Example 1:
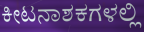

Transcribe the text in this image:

ಕೀಟನಾಶಕಗಳಲ್ಲಿ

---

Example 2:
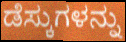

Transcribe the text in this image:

ಡೆಸ್ಕುಗಳನ್ನು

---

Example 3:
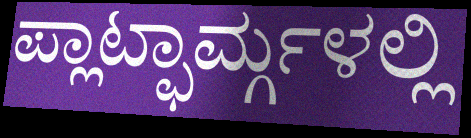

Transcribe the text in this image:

ಪ್ಲಾಟ್ಫಾರ್ಮ್ಗಳಲ್ಲಿ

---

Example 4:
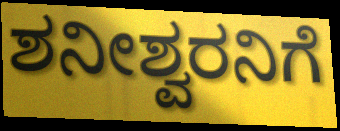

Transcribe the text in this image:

ಶನೀಶ್ವರನಿಗೆ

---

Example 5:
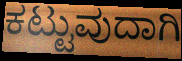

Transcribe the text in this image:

ಕಟ್ಟುವುದಾಗಿ